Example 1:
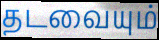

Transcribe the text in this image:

தடவையும்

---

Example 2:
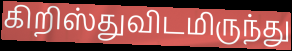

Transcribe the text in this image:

கிறிஸ்துவிடமிருந்து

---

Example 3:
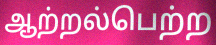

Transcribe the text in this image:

ஆற்றல்பெற்ற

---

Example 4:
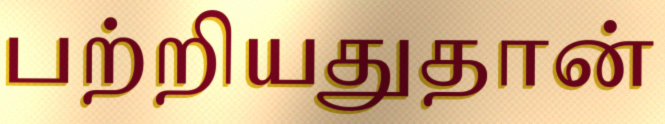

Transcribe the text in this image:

பற்றியதுதான்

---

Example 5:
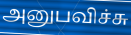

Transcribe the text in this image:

அனுபவிச்சு